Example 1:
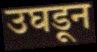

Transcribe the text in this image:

उघडून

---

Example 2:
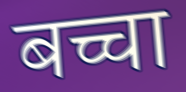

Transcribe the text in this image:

बच्चा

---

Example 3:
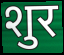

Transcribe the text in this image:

शुर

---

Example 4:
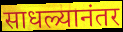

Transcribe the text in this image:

साधल्यानंतर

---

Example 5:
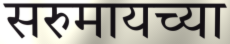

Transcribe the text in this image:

सरुमायच्या